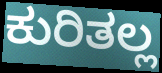
ಕುರಿತಲ್ಲ